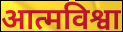
आत्मविश्वा